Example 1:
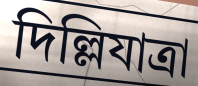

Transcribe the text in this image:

দিল্লিযাত্রা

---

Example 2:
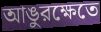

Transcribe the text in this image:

আঙুরক্ষেতে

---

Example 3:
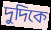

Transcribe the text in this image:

দুদিকে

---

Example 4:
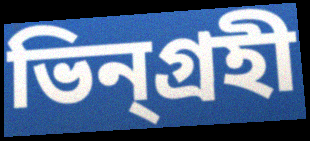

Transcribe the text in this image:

ভিন্গ্রহী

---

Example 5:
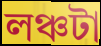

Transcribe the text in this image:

লঞ্চটা